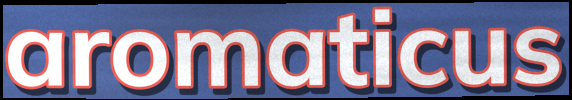
aromaticus